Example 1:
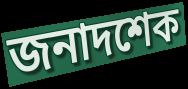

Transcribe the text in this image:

জনাদশেক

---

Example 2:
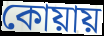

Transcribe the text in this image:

কোয়ায়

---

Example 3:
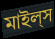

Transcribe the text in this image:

মাইল্‌স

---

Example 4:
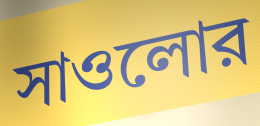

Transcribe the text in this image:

সাওলোর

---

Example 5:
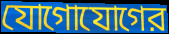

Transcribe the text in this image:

যোগোযোগের